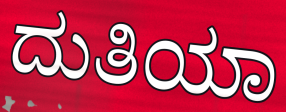
ದುತಿಯಾ